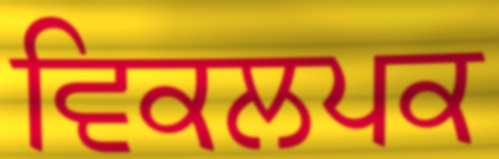
ਵਿਕਲਪਕ